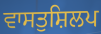
ਵਾਸਤੁਸ਼ਿਲਪ